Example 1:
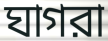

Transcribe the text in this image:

ঘাগরা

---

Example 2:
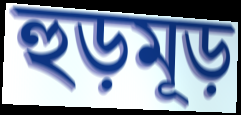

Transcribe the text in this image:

হুড়মূড়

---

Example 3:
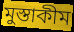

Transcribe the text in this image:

মুস্তাকীম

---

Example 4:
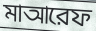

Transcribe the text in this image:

মাআরেফ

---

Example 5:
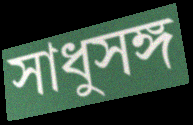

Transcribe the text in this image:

সাধুসঙ্গ